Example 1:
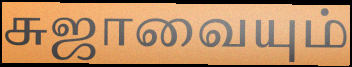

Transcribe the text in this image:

சுஜாவையும்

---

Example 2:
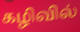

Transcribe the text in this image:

கழிவில்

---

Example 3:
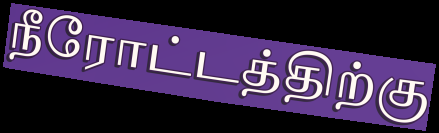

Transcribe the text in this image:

நீரோட்டத்திற்கு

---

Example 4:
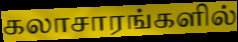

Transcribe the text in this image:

கலாசாரங்களில்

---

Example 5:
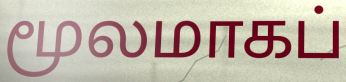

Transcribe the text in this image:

மூலமாகப்